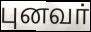
புனவர்